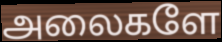
அலைகளே